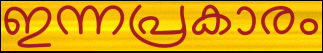
ഇന്നപ്രകാരം